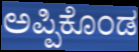
ಅಪ್ಪಿಕೊಂಡ